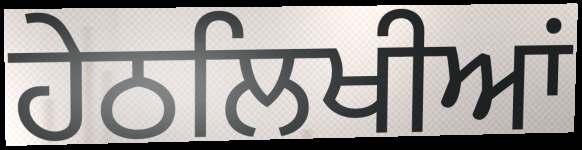
ਹੇਠਲਿਖੀਆਂ